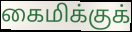
கைமிக்குக்